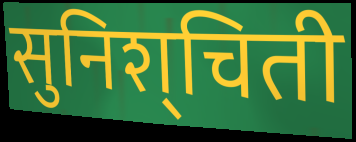
सुनिश्चिती